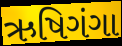
ઋષિગંગા